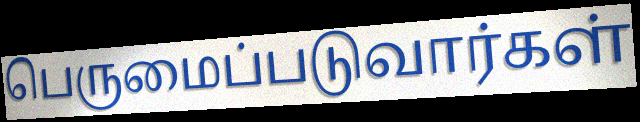
பெருமைப்படுவார்கள்